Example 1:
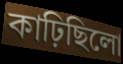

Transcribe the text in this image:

কাঢ়িছিলো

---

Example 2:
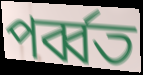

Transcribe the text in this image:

পৰ্ব্বত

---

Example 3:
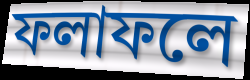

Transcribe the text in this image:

ফলাফলে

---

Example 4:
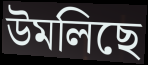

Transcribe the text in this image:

উমলিছে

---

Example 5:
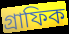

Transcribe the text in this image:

গ্ৰাফিক